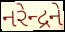
નરેન્દ્રને